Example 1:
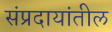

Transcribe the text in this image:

संप्रदायांतील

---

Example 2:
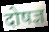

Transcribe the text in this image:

दोषज्ञ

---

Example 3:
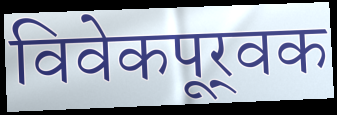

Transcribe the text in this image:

विवेकपूर्वक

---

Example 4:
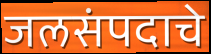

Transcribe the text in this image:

जलसंपदाचे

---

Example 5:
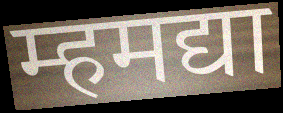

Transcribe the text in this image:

म्हमद्या